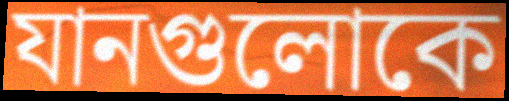
যানগুলোকে